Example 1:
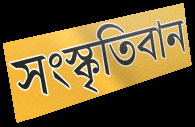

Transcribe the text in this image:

সংস্কৃতিবান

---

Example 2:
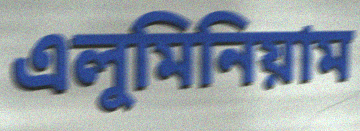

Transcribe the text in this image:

এলুমিনিয়াম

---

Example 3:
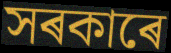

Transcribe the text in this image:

সৰকাৰে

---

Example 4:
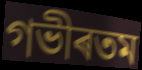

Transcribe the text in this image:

গভীৰতম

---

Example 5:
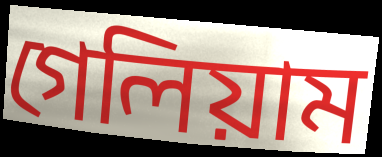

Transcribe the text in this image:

গেলিয়াম